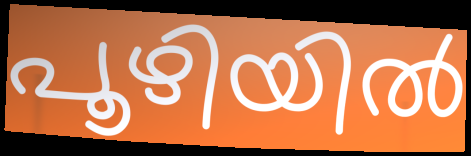
പൂഴിയിൽ